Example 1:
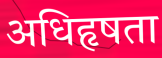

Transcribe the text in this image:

अधिहृषता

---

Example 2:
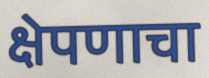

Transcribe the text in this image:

क्षेपणाचा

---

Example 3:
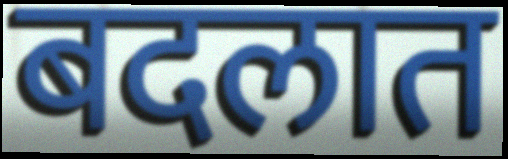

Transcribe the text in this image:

बदलात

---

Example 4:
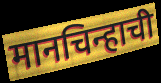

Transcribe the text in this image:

मानचिन्हाची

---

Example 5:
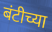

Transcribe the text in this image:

बंटीच्या